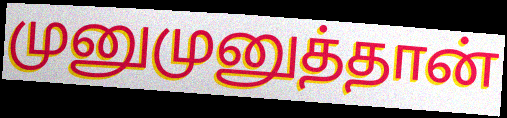
முனுமுனுத்தான்